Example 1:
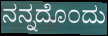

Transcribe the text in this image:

ನನ್ನದೊಂದು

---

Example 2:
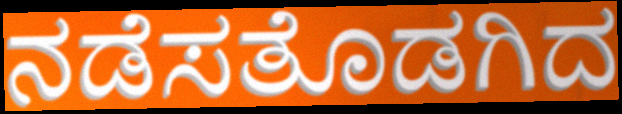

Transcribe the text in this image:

ನಡೆಸತೊಡಗಿದ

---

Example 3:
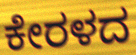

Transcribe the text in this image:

ಕೇರಳದ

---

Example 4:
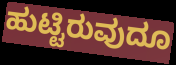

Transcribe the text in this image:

ಹುಟ್ಟಿರುವುದೂ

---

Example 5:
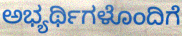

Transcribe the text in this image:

ಅಭ್ಯರ್ಥಿಗಳೊಂದಿಗೆ